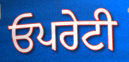
ਓਪਰੇਟੀ